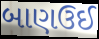
બાણઉઈ